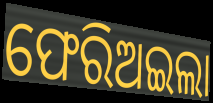
ଫେରିଅଇଲା